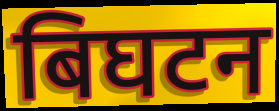
बिघटन